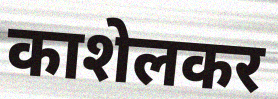
काशेलकर